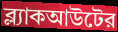
ব্ল্যাকআউটের